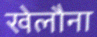
खेलौना